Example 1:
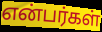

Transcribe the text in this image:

என்பர்கள்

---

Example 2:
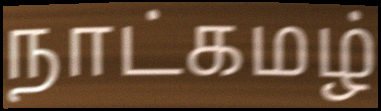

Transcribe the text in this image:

நாட்கமழ்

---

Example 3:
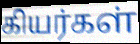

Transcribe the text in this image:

கியர்கள்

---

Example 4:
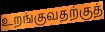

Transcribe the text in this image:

உறங்குவதற்குத்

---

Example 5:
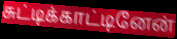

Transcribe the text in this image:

சுட்டிக்காட்டினேன்